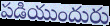
పడియుందురు